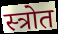
स्त्रोत